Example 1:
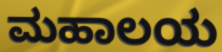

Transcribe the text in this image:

ಮಹಾಲಯ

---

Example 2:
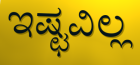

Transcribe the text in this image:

ಇಷ್ಟವಿಲ್ಲ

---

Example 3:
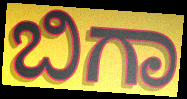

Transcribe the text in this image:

ಬಿಗಾ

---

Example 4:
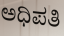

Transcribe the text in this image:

ಅಧಿಪತಿ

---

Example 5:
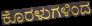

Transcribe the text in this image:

ಕೊರಳುಗಳಿಂದ